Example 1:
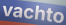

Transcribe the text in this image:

vachto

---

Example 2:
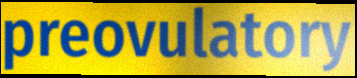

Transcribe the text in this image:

preovulatory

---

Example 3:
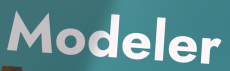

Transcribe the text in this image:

Modeler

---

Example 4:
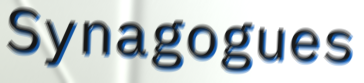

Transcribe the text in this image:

Synagogues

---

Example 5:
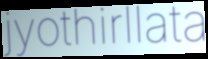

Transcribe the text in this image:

jyothirllata